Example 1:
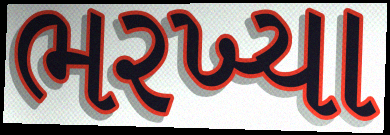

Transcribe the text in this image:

ભરખ્યા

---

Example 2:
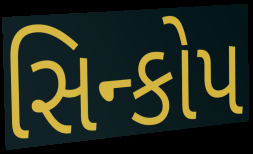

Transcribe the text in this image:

સિન્કોપ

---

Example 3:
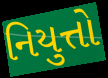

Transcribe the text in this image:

નિયુત્તો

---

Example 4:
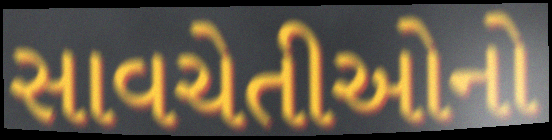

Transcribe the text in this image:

સાવચેતીઓનો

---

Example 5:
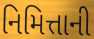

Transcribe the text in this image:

નિમિત્તાની